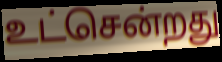
உட்சென்றது